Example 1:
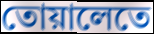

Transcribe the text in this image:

তোয়ালেতে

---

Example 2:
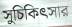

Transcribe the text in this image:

সুচিকিৎসার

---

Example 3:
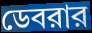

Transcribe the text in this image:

ডেবরার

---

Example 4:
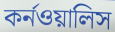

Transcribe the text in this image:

কর্নওয়ালিস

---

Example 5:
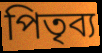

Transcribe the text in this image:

পিতৃব্য